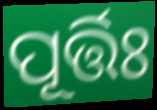
ପୂର୍ତ୍ତିଃ